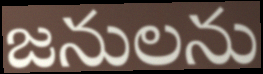
జనులను